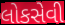
લોકસેવી